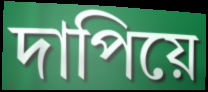
দাপিয়ে